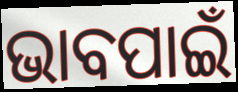
ଭାବପାଇଁ